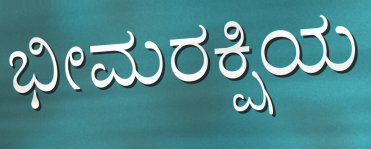
ಭೀಮರಕ್ಷಿಯ